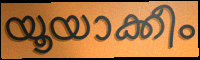
യൂയാക്കീം